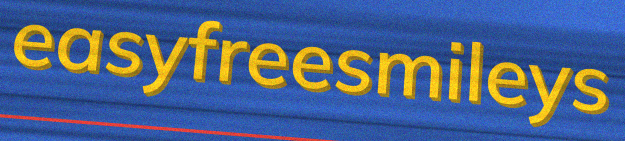
easyfreesmileys